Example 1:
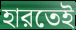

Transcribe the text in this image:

হারতেই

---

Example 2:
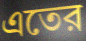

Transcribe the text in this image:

এতের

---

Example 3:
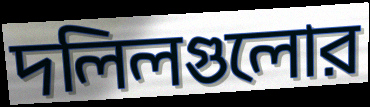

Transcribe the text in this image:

দলিলগুলোর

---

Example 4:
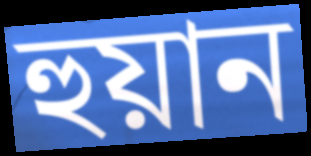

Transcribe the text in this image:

হুয়ান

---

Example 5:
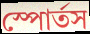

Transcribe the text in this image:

স্পোর্তস